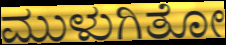
ಮುಳುಗಿತೋ